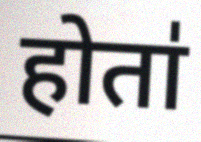
होता॑